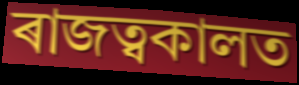
ৰাজত্বকালত